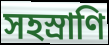
সহস্রাণি